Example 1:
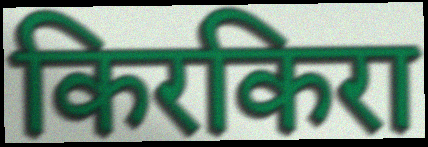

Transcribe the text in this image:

किरकिरा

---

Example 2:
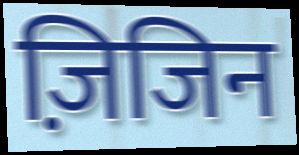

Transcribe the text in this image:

ज़िजिन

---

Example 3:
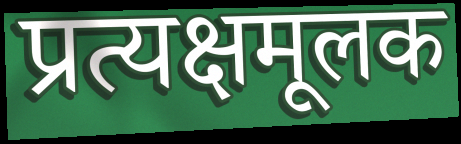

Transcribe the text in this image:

प्रत्यक्षमूलक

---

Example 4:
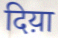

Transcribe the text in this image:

दिय़ा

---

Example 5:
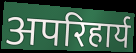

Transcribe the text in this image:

अपरिहार्य